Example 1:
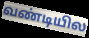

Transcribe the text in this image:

வண்டியில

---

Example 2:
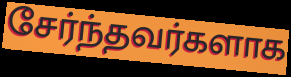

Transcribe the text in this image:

சேர்ந்தவர்களாக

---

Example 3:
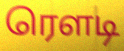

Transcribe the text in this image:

ரௌடி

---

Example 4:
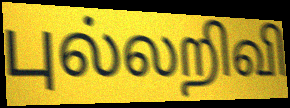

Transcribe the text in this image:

புல்லறிவி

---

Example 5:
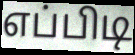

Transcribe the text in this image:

எப்பிடி